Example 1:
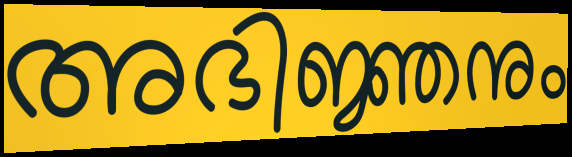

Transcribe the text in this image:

അഭിജ്ഞനും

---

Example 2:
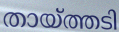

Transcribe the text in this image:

തായ്ത്തടി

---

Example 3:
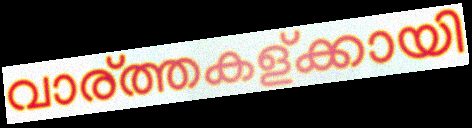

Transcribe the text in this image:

വാര്ത്തകള്ക്കായി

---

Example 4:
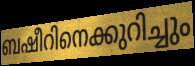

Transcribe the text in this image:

ബഷീറിനെക്കുറിച്ചും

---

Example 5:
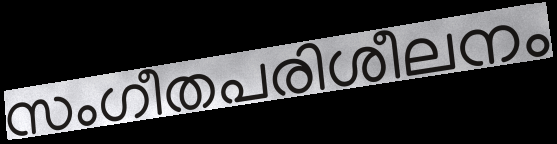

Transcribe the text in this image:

സംഗീതപരിശീലനം